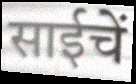
साईचें